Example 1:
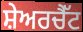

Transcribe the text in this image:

ਸ਼ੇਅਰਚੈੱਟ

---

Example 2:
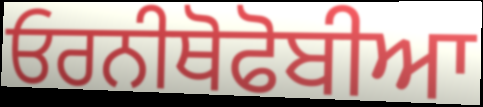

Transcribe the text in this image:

ਓਰਨੀਥੋਫੋਬੀਆ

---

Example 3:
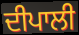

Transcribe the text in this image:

ਦੀਪਾਲੀ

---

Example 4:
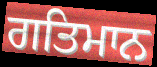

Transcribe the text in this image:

ਗਤਿਮਾਨ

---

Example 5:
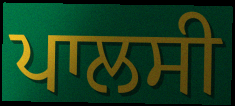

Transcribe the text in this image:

ਪਾਲਸੀ